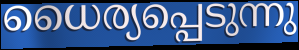
ധൈര്യപ്പെടുന്നു